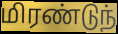
மிரண்டுந்